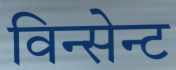
विन्सेन्ट